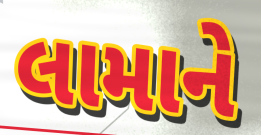
લામાને